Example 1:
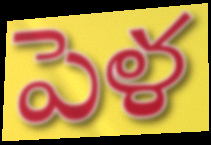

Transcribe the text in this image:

పెళ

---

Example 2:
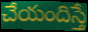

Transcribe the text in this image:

చేయందిస్తే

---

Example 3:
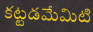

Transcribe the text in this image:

కట్టడమేమిటి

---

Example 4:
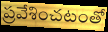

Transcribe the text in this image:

ప్రవేశించటంతో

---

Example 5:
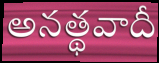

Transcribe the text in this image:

అనత్థవాదీ